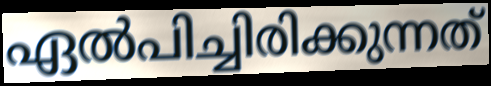
ഏൽപിച്ചിരിക്കുന്നത്